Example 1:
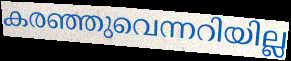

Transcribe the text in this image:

കരഞ്ഞുവെന്നറിയില്ല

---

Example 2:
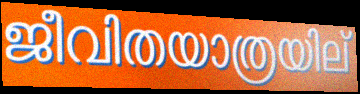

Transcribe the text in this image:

ജീവിതയാത്രയില്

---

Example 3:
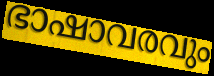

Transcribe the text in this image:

ഭാഷാവരവും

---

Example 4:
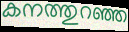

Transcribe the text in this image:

കനത്തുറഞ്ഞ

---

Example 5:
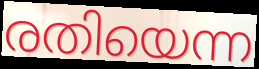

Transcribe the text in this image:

രതിയെന്ന